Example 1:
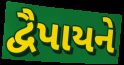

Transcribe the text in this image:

દ્વૈપાયને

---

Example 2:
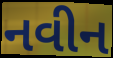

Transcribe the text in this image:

નવીન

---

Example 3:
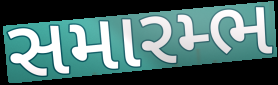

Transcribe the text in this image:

સમારમ્ભ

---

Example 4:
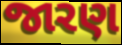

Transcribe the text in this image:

જારણ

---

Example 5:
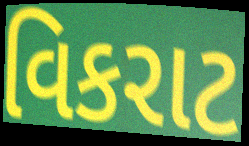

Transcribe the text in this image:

વિકરાટ